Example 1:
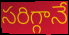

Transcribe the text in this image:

సరిగ్గానే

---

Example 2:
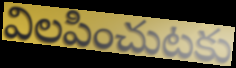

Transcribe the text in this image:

విలపించుటకు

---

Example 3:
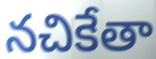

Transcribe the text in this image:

నచికేతా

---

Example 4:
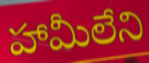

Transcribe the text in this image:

హామీలేని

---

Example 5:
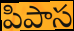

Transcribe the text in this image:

పిపాస